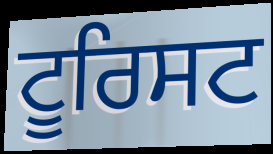
ਟੂਰਿਸਟ